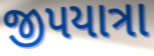
જીપયાત્રા